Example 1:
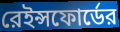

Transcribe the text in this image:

রেইন্সফোর্ডের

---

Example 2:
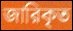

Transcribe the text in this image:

জারিকৃত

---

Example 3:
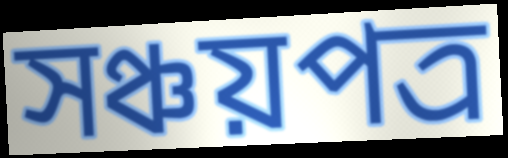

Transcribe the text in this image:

সঞ্চয়পত্র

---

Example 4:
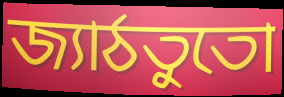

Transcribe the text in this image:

জ্যাঠতুতো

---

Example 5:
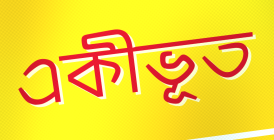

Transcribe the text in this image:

একীভূত